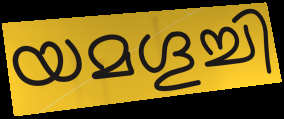
യമഗൂച്ചി